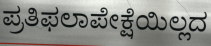
ಪ್ರತಿಫಲಾಪೇಕ್ಷೆಯಿಲ್ಲದ